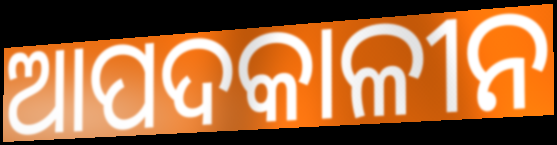
ଆପଦକାଳୀନ